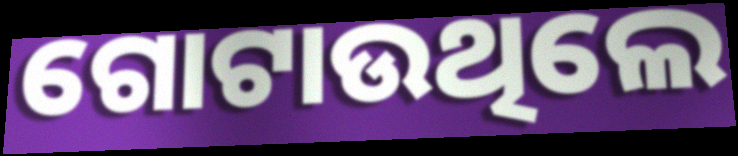
ଗୋଟାଉଥିଲେ